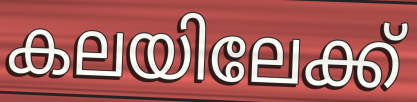
കലയിലേക്ക്